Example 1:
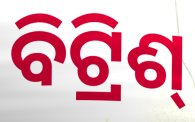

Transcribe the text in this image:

ବିଟ୍ରିଶ୍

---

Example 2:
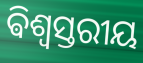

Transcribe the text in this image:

ଵିଶ୍ୱସ୍ତରୀୟ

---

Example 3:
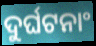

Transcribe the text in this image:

ଦୁର୍ଘଟନାଂ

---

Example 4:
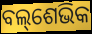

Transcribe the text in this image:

ବଲ୍‌ଶେଭିକ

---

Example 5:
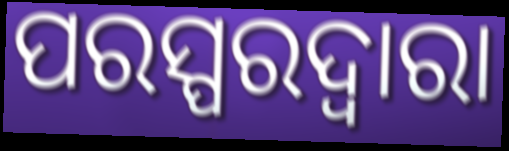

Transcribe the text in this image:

ପରସ୍ପରଦ୍ୱାରା